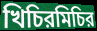
খিচিরমিচির